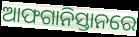
ଆଫଗାନିସ୍ତାନରେ